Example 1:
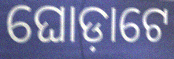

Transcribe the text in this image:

ଘୋଡ଼ାଟେ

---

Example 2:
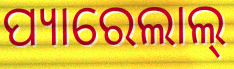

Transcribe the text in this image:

ପ୍ୟାରେଲାଲ୍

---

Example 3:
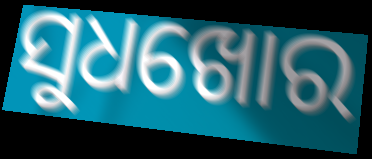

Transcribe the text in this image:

ସୁଧଖୋର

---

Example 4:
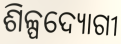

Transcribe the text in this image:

ଶିଳ୍ପଦ୍ୟୋଗୀ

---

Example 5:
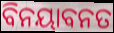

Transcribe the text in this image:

ବିନୟାବନତ